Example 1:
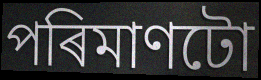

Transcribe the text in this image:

পৰিমাণটো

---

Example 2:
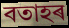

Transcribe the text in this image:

বতাহৰ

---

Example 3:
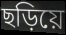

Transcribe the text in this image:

ছড়িয়ে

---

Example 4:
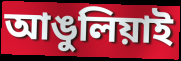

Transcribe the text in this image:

আঙুলিয়াই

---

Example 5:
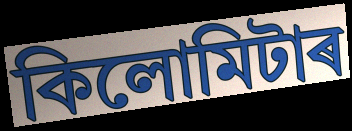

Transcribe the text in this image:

কিলোমিটাৰ